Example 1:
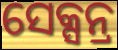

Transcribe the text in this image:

ସେକ୍ସନ୍ର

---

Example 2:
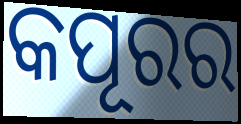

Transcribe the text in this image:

କପୂରର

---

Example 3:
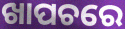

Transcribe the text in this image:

ଖାପଚରେ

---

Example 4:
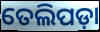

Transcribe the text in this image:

ତେଲିପଡ଼ା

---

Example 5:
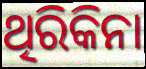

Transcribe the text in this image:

ଥିରିକିନା